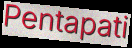
Pentapati